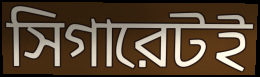
সিগারেটই